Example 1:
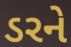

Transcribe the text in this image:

ડરને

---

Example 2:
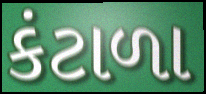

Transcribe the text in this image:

કંટાળા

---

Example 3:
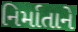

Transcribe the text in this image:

નિર્માતાને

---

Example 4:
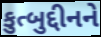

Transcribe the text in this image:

કુત્બુદ્દીનને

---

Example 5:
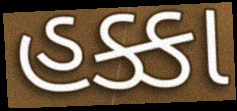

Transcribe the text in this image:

હક્કા